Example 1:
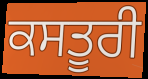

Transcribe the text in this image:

ਕਸਤੂਰੀ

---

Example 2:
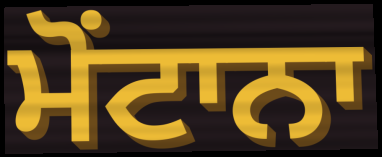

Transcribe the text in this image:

ਮੋਂਟਾਨਾ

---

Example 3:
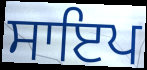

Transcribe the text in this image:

ਸਾਇਪ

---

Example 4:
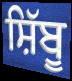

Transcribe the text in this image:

ਸ਼ਿੱਬੂ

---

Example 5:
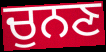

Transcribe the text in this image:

ਚੁਨਣ